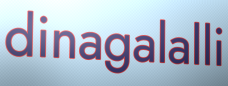
dinagalalli